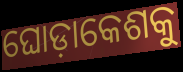
ଘୋଡ଼ାକେଶକୁ